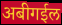
अबीगईल